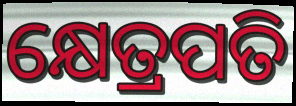
କ୍ଷେତ୍ରପତି